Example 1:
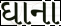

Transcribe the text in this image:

ઘાના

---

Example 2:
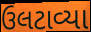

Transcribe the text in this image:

ઉલટાવ્યા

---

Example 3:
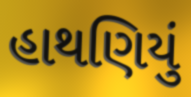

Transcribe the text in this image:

હાથણિયું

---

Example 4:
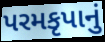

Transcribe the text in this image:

પરમકૃપાનું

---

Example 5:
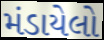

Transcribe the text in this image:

મંડાયેલો